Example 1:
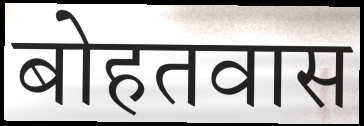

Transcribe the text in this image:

बोहतवास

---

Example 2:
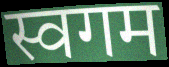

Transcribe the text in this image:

स्वगम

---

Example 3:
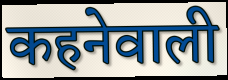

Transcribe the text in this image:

कहनेवाली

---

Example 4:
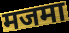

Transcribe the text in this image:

मजमा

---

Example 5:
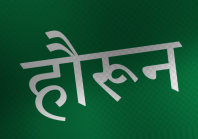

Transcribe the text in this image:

हौरून